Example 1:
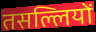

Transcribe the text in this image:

तसल्लियों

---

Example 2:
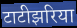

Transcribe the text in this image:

टाटीझरिया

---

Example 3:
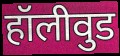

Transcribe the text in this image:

हॉलीवुड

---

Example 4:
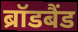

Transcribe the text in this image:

ब्रॉडबैंड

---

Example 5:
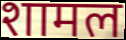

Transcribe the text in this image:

शामल